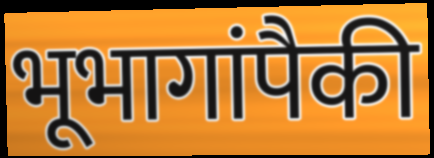
भूभागांपैकी